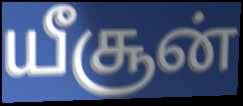
யீசூன்